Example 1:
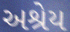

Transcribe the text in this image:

અશ્રેય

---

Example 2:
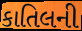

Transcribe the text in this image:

કાતિલની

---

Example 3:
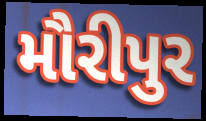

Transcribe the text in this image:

મૌરીપુર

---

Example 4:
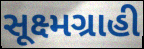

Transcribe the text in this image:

સૂક્ષ્મગ્રાહી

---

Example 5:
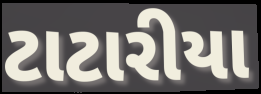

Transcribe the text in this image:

ટાટારીયા